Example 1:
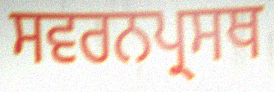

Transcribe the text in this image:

ਸਵਰਨਪ੍ਰਸਥ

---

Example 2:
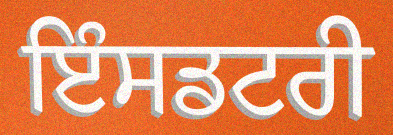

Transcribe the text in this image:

ਇੰਸਡਟਰੀ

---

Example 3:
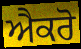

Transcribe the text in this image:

ਐਕਰੋ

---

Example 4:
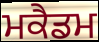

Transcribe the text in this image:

ਮਕੈਡਮ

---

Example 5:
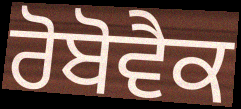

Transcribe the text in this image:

ਰੋਬੋਵੈਕ